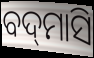
ବଦ୍‌ମାସି